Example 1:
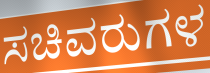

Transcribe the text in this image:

ಸಚಿವರುಗಳ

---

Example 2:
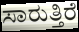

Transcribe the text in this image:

ಸಾರುತ್ತಿರೆ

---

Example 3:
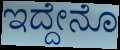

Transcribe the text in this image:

ಇದ್ದೇನೊ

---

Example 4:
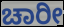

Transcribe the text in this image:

ಚಾರೀ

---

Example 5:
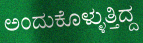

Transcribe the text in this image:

ಅಂದುಕೊಳ್ಳುತ್ತಿದ್ದ